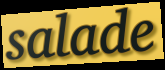
salade